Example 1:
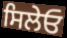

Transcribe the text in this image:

ਸਿਲੇਓ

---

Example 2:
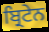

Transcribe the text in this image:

ਬ੍ਰਿਟੇਨ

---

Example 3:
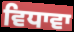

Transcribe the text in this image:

ਵਿਧਾਵਾ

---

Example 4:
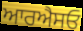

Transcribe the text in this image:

ਆਰਐਸਓ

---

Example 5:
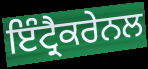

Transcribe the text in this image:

ਇੰਟ੍ਰੈਕਰੇਨਲ